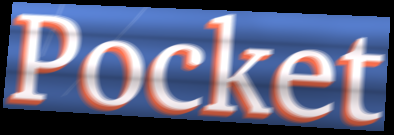
Pocket